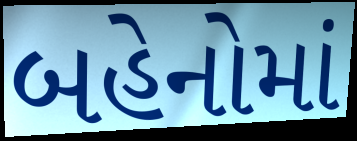
બહેનોમાં